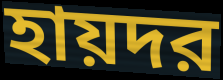
হায়দর